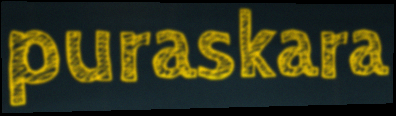
puraskara